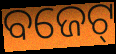
ବଜେଟ୍